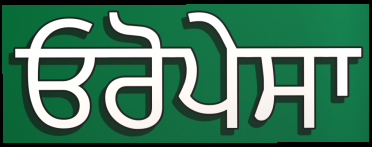
ਓਰੋਪੇਸਾ